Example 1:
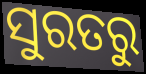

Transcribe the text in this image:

ସୁରତରୁ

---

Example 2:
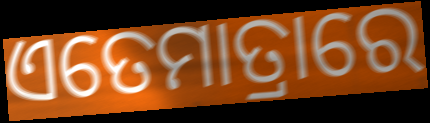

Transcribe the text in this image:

ଏତେମାତ୍ରାରେ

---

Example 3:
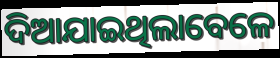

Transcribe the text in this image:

ଦିଆଯାଇଥିଲାବେଳେ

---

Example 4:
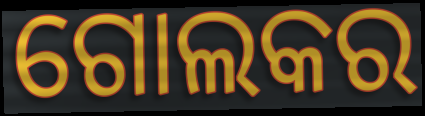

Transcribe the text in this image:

ଗୋଲକର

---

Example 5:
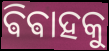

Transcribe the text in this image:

ଵିଵାହକୁ